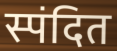
स्पंदित